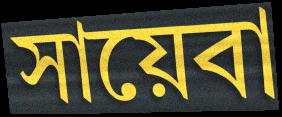
সায়েবা